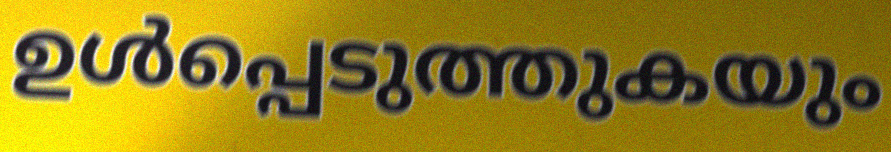
ഉൾപ്പെടുത്തുകയും